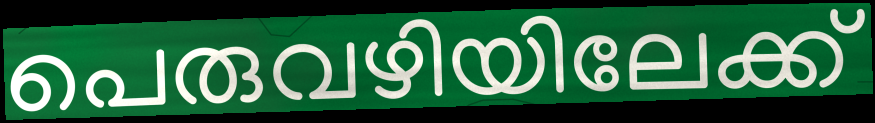
പെരുവഴിയിലേക്ക്